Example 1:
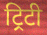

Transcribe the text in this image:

ट्रिटी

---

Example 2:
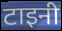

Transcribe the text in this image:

टाइनी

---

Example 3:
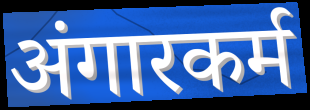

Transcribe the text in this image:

अंगारकर्म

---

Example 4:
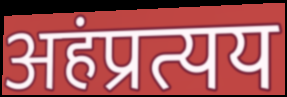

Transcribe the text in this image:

अहंप्रत्यय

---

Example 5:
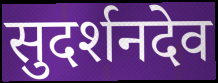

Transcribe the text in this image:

सुदर्शनदेव